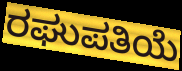
ರಘುಪತಿಯೆ